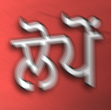
ਲੋਪੋਂ